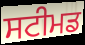
ਸਟੀਮਡ